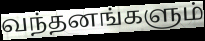
வந்தனங்களும்